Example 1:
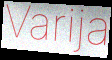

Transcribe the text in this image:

Varija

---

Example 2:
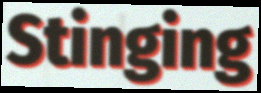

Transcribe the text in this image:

Stinging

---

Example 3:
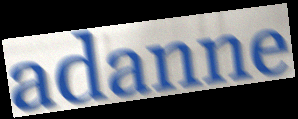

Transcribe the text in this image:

adanne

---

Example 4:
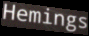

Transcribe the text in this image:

Hemings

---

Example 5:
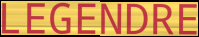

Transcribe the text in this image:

LEGENDRE